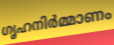
ഗൃഹനിർമ്മാണം